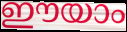
ഈയാം